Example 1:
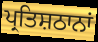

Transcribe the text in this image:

ਪ੍ਰਤਿਸ਼ਠਾਨਾਂ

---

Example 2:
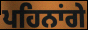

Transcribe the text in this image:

ਪਹਿਨਾਂਗੇ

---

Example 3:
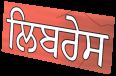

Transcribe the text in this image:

ਲਿਬਰੇਸ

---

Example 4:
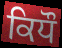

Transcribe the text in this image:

ਕਿਧੌ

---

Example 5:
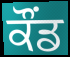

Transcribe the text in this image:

ਕੌਂਡ